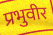
प्रभुवीर